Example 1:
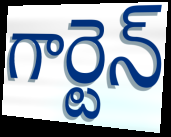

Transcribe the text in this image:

గార్టెన్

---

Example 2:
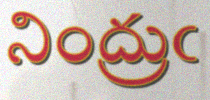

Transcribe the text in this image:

నింద్రుఁ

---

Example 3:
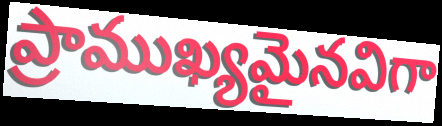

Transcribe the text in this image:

ప్రాముఖ్యమైనవిగా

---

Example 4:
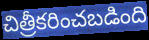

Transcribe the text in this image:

చిత్రీకరించబడింది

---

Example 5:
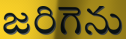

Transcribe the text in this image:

జరిగెను